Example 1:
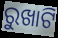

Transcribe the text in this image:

ରୁଖାଟି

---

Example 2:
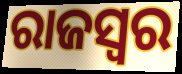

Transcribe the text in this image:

ରାଜସ୍ବର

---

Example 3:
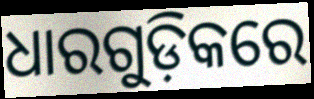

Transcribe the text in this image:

ଧାରଗୁଡ଼ିକରେ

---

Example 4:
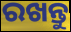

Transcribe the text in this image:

ରଖନ୍ତୁ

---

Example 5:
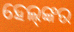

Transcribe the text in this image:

ହେଲ୍‌ଙ୍କର